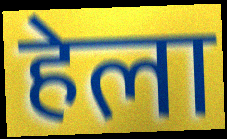
हेला